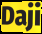
Daji